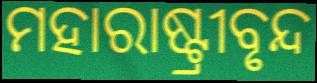
ମହାରାଷ୍ଟ୍ରୀବୃନ୍ଦ